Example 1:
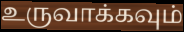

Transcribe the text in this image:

உருவாக்கவும்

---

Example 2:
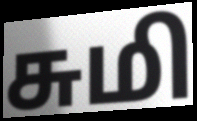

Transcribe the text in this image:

சுமி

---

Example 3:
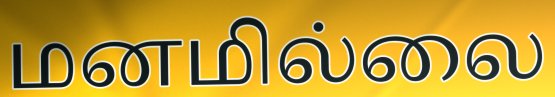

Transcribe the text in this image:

மனமில்லை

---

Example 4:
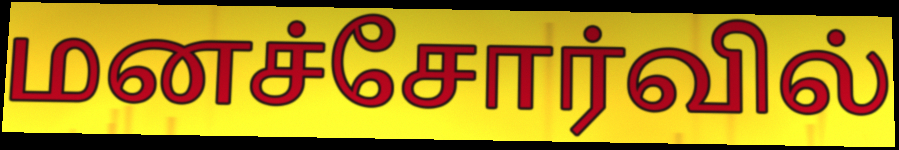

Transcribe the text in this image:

மனச்சோர்வில்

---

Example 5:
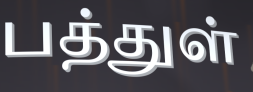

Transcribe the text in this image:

பத்துள்